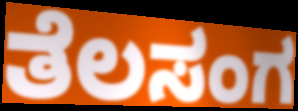
ತೆಲಸಂಗ